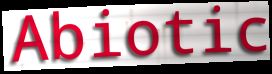
Abiotic